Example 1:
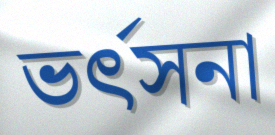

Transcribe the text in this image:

ভৰ্ৎসনা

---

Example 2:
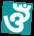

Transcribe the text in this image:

ঔঁ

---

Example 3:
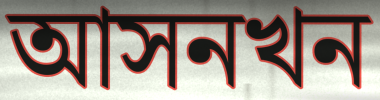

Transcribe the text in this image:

আসনখন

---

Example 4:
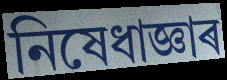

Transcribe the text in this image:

নিষেধাজ্ঞাৰ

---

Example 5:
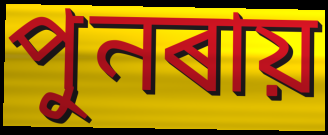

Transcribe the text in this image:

পুনৰায়